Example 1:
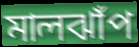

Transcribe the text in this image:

মালঝাঁপ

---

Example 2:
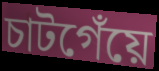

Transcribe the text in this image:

চাটগেঁয়ে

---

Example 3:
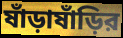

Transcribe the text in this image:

ষাঁড়াষাঁড়ির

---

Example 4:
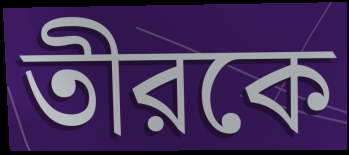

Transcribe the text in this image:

তীরকে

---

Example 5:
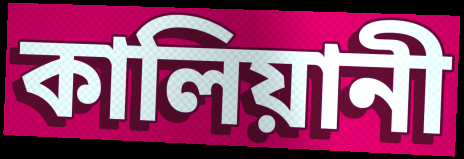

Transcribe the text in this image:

কালিয়ানী